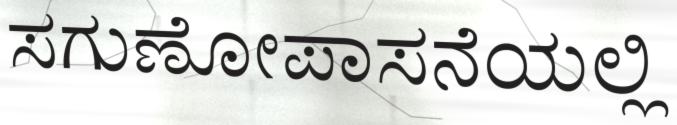
ಸಗುಣೋಪಾಸನೆಯಲ್ಲಿ